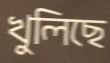
খুলিছে